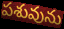
పశువును